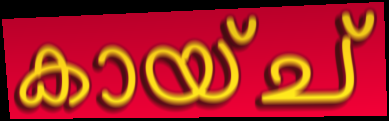
കായ്ച്